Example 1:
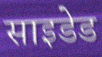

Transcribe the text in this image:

साइडेड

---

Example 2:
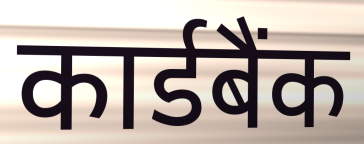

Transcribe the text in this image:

कार्डबैंक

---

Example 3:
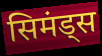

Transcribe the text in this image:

सिमंड्स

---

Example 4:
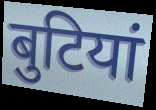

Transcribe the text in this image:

बुटियां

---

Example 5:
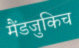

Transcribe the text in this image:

मैंडजुकिच